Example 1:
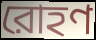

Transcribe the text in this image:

রোহণ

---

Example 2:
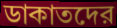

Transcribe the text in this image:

ডাকাতদের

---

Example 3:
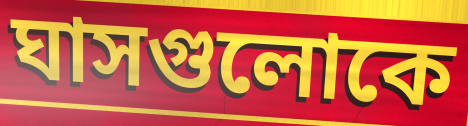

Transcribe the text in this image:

ঘাসগুলোকে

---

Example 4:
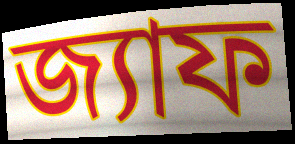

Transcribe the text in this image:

জ্যাফ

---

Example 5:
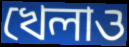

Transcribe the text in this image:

খেলাও